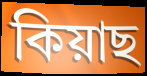
কিয়াছ